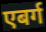
एबर्ग